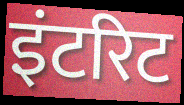
इंटरिट